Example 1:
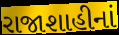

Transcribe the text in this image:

રાજાશાહીનાં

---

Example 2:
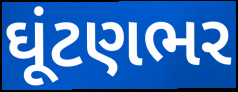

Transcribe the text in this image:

ઘૂંટણભર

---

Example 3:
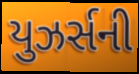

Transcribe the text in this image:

યુઝર્સની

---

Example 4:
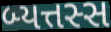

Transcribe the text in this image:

બ્યત્તસ્સ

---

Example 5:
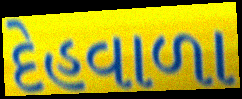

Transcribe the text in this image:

દેહવાળા